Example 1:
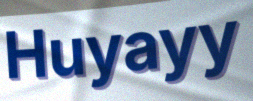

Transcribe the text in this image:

Huyayy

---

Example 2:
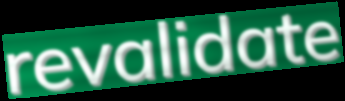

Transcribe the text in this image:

revalidate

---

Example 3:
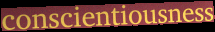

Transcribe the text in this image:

conscientiousness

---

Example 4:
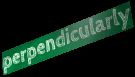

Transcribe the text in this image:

perpendicularly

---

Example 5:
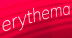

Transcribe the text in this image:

erythema